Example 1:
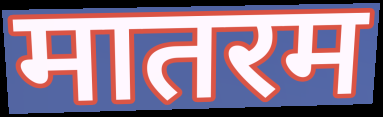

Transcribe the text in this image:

मातरम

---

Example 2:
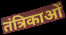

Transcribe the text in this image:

तंत्रिकाओं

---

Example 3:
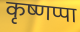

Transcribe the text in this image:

कृष्‍णप्‍पा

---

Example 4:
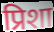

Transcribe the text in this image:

प्रिशा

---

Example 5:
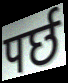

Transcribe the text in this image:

पर्छ